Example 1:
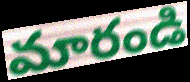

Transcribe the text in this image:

మారండి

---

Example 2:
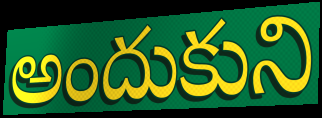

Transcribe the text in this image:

అందుకుని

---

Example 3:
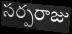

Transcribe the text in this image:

సర్పరాజు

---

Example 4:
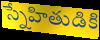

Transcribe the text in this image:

స్నేహితుడికి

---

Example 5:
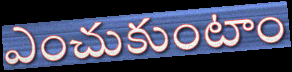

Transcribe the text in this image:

ఎంచుకుంటాం